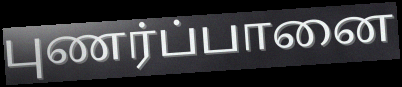
புணர்ப்பானை